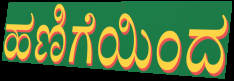
ಹಣಿಗೆಯಿಂದ